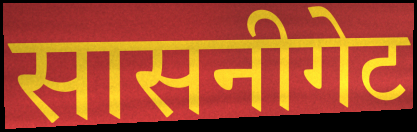
सासनीगेट